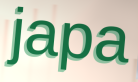
japa